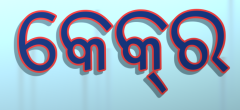
କେକ୍‌ର